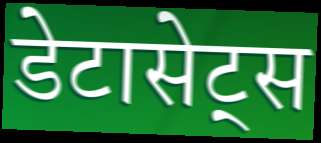
डेटासेट्स